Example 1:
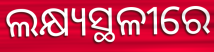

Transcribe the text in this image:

ଲକ୍ଷ୍ୟସ୍ଥଳୀରେ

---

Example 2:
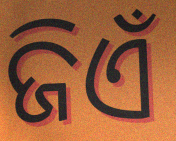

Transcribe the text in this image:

ଜିଏଁ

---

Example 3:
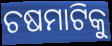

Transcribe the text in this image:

ଚଷମାଟିକୁ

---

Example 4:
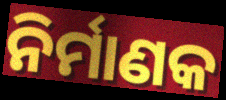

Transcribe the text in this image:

ନିର୍ମାଣକ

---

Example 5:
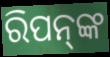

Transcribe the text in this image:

ରିପନ୍‍ଙ୍କ